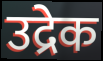
उद्रेक